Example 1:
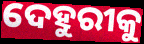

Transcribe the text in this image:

ଦେହୁରୀକୁ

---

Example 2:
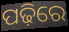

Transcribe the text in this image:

ପଢ଼ିରେ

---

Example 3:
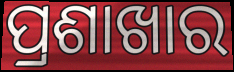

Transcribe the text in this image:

ପ୍ରଶାଖାର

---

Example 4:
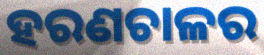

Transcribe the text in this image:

ହରଣଚାଳର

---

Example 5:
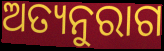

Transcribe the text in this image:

ଅତ୍ୟନୁରାଗ